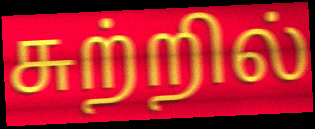
சுற்றில்